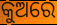
କୁଅରେ